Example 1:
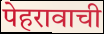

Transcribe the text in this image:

पेहरावाची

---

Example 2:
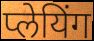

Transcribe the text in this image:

प्लेयिंग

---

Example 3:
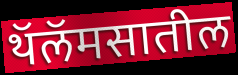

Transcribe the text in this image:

थॅलॅमसातील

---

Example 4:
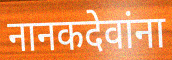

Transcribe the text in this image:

नानकदेवांना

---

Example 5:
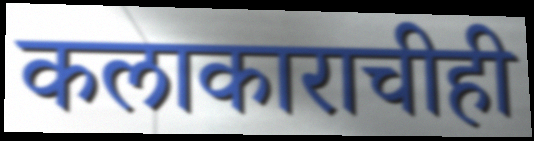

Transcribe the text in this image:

कलाकाराचीही